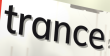
trance